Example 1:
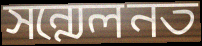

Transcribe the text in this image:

সন্মেলনত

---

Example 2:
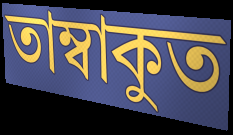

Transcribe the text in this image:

তাম্বাকুত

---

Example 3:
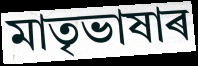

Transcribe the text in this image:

মাতৃভাষাৰ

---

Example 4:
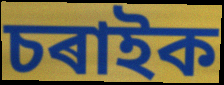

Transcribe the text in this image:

চৰাইক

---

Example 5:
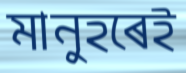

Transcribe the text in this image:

মানুহৰেই